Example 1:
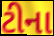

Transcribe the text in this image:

ટીના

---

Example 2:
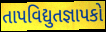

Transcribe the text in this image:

તાપવિદ્યુતજ્ઞાપકો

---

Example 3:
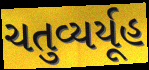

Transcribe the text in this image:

ચતુવ્યર્યૂહ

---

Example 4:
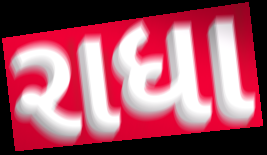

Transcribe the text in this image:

રાધા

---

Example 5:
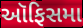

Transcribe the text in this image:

ઑફિસમા